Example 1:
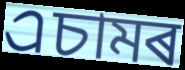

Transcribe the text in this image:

এচামৰ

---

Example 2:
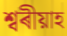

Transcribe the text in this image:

শ্বৰীয়াহ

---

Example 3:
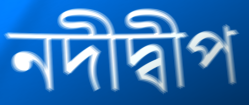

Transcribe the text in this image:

নদীদ্বীপ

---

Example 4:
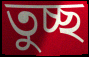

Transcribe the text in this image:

তুচ্ছ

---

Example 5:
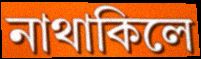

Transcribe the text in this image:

নাথাকিলে